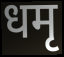
धमृ